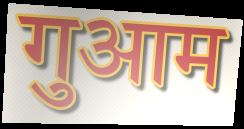
गुआम